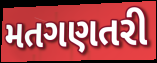
મતગણતરી